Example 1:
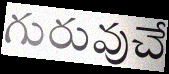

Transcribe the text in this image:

గురువుచే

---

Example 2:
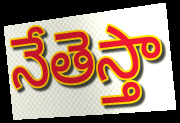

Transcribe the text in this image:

నేతెస్తా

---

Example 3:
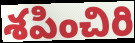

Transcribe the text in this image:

శపించిరి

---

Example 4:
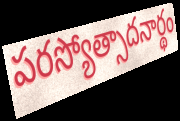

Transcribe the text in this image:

పరస్యోత్సాదనార్థం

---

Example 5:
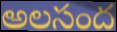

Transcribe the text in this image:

అలసంద